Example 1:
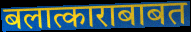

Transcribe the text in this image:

बलात्काराबाबत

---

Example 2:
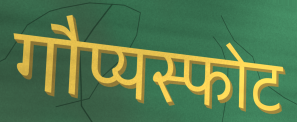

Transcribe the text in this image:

गौप्यस्फोट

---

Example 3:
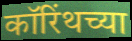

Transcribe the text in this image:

कॉरिंथच्या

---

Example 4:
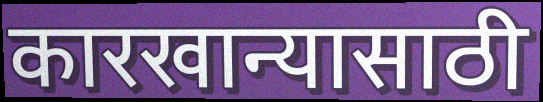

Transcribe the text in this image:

कारखान्यासाठी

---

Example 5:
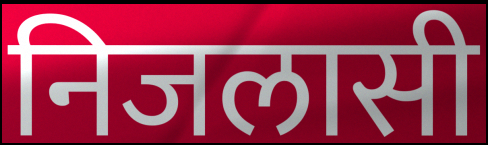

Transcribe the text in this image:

निजलासी